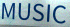
MUSIC